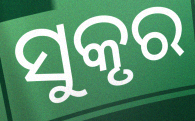
ସୁକୃର